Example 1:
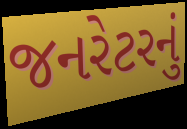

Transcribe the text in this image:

જનરેટરનું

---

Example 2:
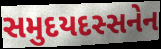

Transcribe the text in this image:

સમુદયદસ્સનેન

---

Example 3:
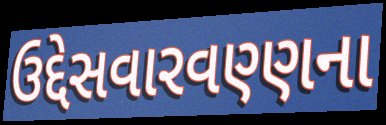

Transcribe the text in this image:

ઉદ્દેસવારવણ્ણના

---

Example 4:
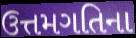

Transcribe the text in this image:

ઉત્તમગતિના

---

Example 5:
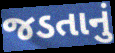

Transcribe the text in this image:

જડતાનું